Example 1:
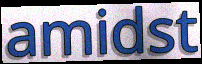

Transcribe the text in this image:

amidst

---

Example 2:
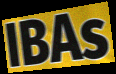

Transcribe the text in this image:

IBAs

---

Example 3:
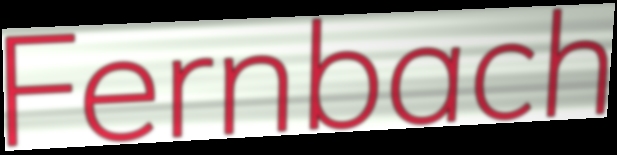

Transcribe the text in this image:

Fernbach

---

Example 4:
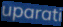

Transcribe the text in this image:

uparati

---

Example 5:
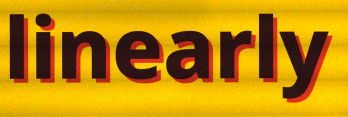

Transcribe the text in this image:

linearly